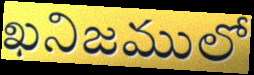
ఖనిజములో